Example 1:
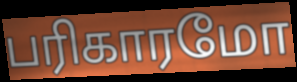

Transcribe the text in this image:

பரிகாரமோ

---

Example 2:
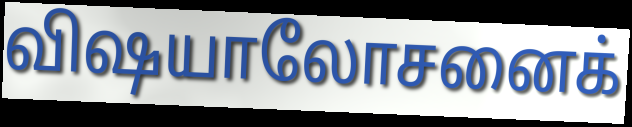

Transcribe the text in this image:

விஷயாலோசனைக்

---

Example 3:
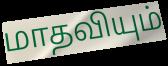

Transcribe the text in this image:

மாதவியும்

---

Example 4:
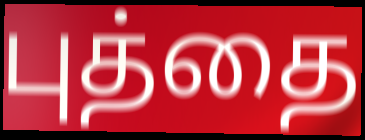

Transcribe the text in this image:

புத்தை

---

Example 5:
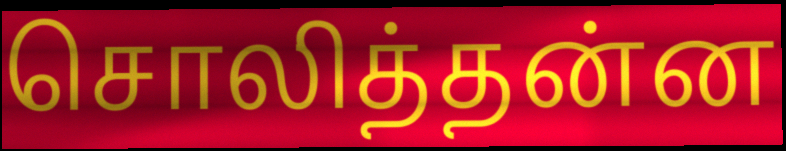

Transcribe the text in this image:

சொலித்தன்ன